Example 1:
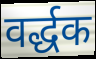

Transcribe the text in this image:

वर्द्धक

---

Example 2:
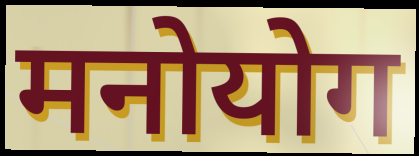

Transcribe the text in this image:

मनोयोग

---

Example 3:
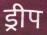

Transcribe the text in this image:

ड्रीप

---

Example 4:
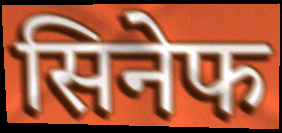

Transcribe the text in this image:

सिनेफ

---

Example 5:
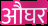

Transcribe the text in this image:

औघर